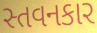
સ્તવનકાર